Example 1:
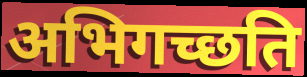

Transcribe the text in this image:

अभिगच्छति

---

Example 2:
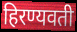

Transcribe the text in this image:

हिरण्यवती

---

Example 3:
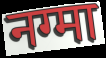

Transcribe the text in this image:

नग्मा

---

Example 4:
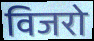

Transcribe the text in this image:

विजरो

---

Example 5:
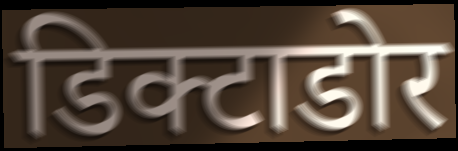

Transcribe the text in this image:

डिक्टाडोर